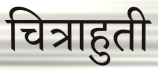
चित्राहुती